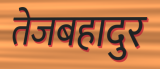
तेजबहादुर